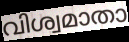
വിശ്വമാതാ